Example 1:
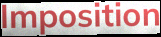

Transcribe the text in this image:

Imposition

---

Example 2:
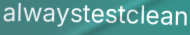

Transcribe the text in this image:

alwaystestclean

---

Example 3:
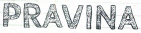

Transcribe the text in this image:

PRAVINA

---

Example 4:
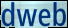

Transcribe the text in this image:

dweb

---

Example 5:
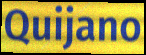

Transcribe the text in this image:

Quijano